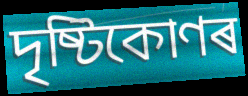
দৃষ্টিকোণৰ